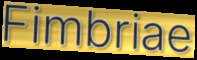
Fimbriae